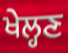
ਖੇਲ੍ਹਣ